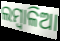
ଲମ୍ବାଳିଆ